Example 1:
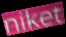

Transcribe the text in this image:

niket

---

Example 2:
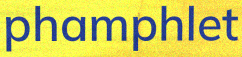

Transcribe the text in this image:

phamphlet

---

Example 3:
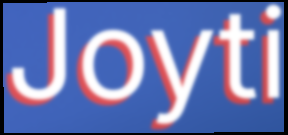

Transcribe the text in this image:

Joyti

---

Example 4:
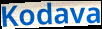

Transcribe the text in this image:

Kodava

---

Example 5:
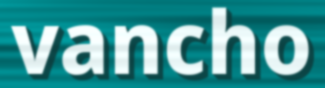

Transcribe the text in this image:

vancho